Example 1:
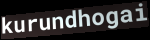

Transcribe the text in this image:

kurundhogai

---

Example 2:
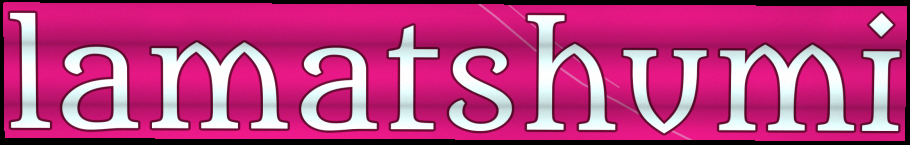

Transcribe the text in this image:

lamatshumi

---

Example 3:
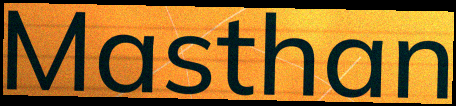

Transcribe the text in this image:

Masthan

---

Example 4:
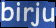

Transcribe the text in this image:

birju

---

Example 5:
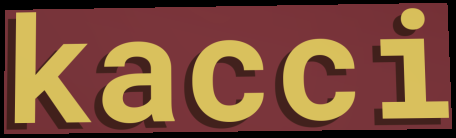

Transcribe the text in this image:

kacci